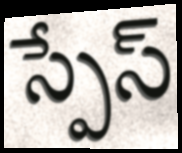
స్పేస్